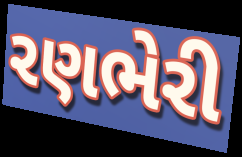
રણભેરી